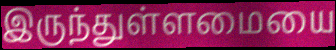
இருந்துள்ளமையை